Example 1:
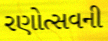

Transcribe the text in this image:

રણોત્સવની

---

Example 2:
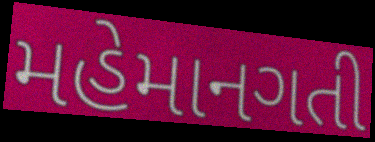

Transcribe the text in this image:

મહેમાનગતી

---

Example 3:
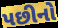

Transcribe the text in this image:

પછીનો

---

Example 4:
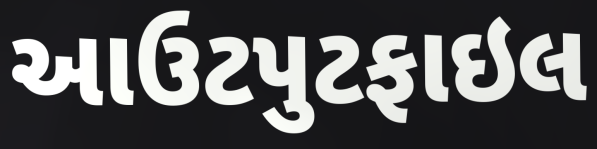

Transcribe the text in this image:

આઉટપુટફાઇલ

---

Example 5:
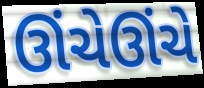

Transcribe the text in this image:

ઊંચેઊંચે